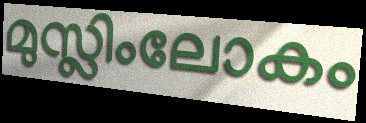
മുസ്ലിംലോകം